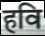
हवि